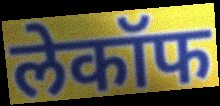
लेकॉफ